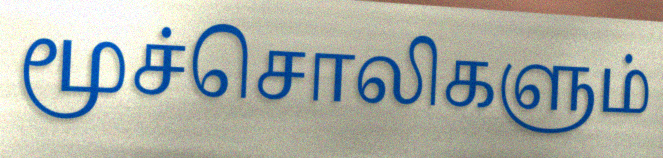
மூச்சொலிகளும்